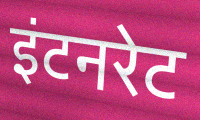
इंटनरेट